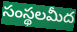
సంస్థలమీద